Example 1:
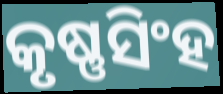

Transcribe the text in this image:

କୃଷ୍ଣସିଂହ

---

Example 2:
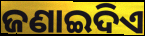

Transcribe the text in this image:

ଜଣାଇଦିଏ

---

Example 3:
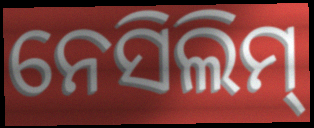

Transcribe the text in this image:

ନେସିଲିମ୍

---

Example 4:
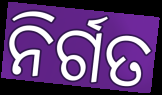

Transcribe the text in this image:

ନିର୍ଗତ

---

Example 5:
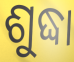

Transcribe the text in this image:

ଶୁଦ୍ଧା